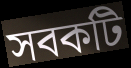
সবকটি